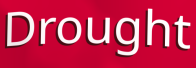
Drought